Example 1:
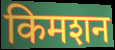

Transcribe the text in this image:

किमशन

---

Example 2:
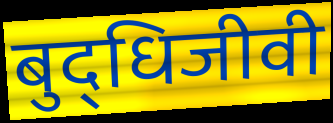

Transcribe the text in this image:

बुद्धिजीवी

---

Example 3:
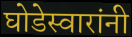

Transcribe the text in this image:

घोडेस्वारांनी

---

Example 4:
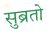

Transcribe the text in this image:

सुब्रतो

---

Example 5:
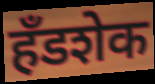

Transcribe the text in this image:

हँडशेक